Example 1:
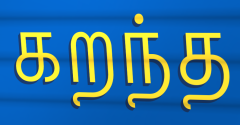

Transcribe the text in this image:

கறந்த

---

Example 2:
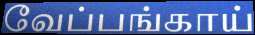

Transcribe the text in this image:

வேப்பங்காய்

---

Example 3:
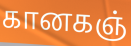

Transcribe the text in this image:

கானகஞ்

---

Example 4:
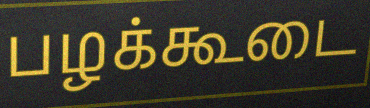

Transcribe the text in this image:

பழக்கூடை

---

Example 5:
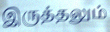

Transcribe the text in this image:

இருத்தலும்